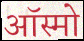
ऑस्मो